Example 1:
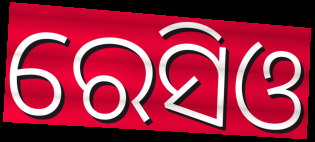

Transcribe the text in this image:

ରେସିଓ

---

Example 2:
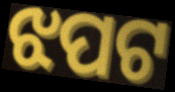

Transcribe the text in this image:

ଝପଟ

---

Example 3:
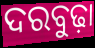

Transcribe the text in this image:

ଦରବୁଢ଼ା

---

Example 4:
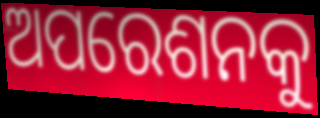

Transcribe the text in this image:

ଅପରେଶନକୁ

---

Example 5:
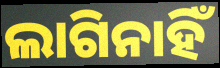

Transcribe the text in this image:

ଲାଗିନାହିଁ